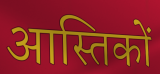
आस्तिकों